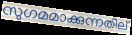
സുഗമമാക്കുന്നതില്